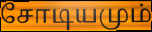
சோடியமும்